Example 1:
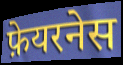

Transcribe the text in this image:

फ़ेयरनेस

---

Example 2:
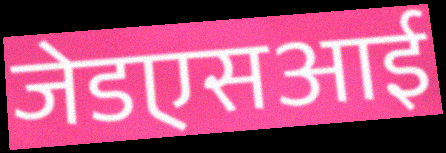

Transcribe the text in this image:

जेडएसआई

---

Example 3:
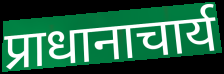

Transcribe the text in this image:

प्राधानाचार्य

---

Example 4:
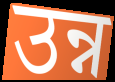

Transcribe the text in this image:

उन्न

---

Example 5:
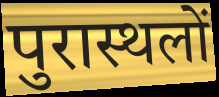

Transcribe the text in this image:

पुरास्थलों